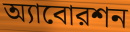
অ্যাবোরশন